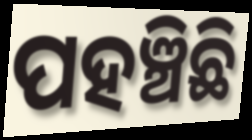
ପହଞ୍ଚିଛି